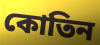
কোতিন